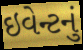
ઇવેન્ટનું